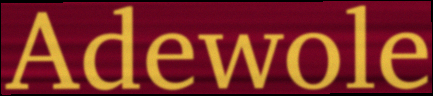
Adewole